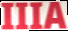
IIIA